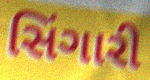
સિંગારી